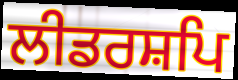
ਲੀਡਰਸ਼ਪਿ